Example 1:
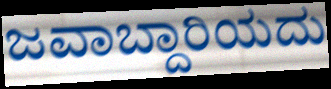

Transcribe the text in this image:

ಜವಾಬ್ದಾರಿಯದು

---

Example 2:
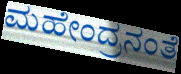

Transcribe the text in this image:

ಮಹೇಂದ್ರನಂತೆ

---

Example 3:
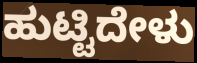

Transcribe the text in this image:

ಹುಟ್ಟಿದೇಳು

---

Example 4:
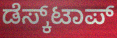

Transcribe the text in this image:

ಡೆಸ್ಕ್‌ಟಾಪ್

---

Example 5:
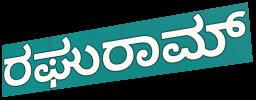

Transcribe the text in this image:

ರಘುರಾಮ್